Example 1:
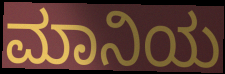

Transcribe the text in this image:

ಮಾನಿಯ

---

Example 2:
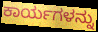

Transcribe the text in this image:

ಕಾರ್ಯಗಳನ್ನು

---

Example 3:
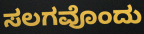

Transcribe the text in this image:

ಸಲಗವೊಂದು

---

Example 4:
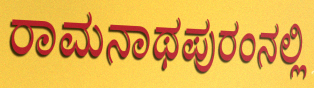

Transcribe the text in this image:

ರಾಮನಾಥಪುರಂನಲ್ಲಿ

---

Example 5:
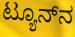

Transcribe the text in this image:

ಟ್ಯೂನ್‌ನ